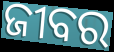
ଜୀବର